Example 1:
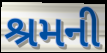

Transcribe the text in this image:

શ્રમની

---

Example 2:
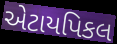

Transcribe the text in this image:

એટાયપિકલ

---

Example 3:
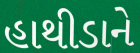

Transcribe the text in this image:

હાથીડાને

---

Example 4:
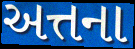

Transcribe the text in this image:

અત્તના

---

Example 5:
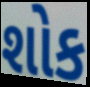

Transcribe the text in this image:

શોક